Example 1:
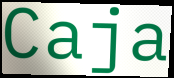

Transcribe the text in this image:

Caja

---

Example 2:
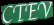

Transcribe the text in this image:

CTEV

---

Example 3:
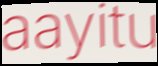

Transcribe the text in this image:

aayitu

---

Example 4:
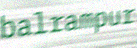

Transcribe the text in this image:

balrampur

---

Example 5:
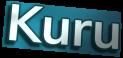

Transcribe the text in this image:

Kuru